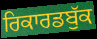
ਰਿਕਾਰਡਬੁੱਕ